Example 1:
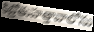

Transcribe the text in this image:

కిబ్రోతుహత్తావాలోను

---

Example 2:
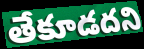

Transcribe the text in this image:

తేకూడదని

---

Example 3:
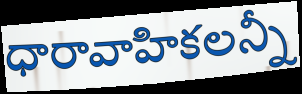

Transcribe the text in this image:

ధారావాహికలన్నీ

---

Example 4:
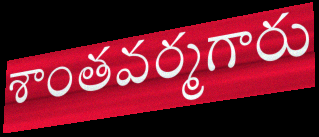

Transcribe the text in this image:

శాంతవర్మగారు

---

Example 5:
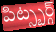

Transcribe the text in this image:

పిట్స్బర్గ్